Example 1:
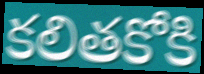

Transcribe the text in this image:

కలితకోకి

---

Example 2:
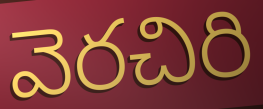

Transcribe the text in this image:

వెరచిరి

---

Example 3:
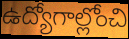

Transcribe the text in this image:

ఉద్యోగాల్లోంచి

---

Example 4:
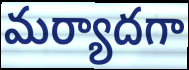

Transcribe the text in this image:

మర్యాదగా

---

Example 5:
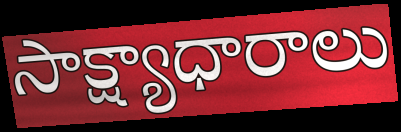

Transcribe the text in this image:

సాక్ష్యాధారాలు